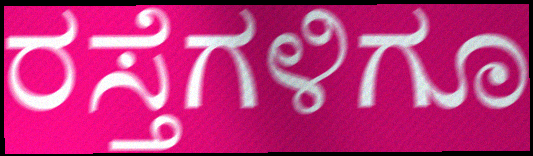
ರಸ್ತೆಗಳಿಗೂ